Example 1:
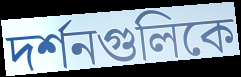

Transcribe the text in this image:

দর্শনগুলিকে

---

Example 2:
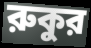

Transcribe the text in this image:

রুকুর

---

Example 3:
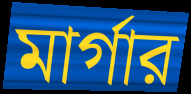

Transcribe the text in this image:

মার্গার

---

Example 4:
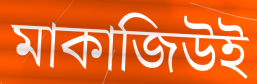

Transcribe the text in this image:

মাকাজিউই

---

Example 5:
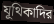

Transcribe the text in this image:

যূথিকাদির